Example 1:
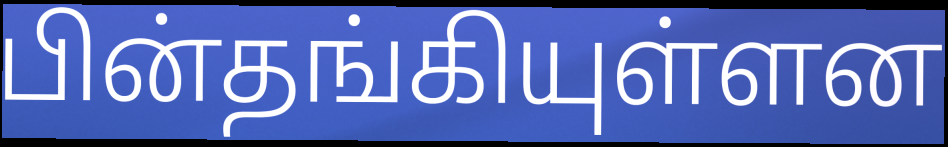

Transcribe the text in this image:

பின்தங்கியுள்ளன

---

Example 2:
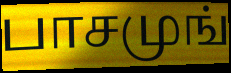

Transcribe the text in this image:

பாசமுங்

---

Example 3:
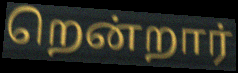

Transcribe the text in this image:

றென்றார்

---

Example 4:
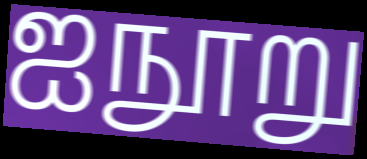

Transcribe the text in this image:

ஐநூறு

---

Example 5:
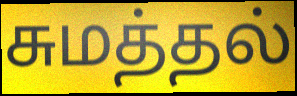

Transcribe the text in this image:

சுமத்தல்